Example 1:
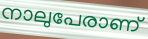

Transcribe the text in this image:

നാലുപേരാണ്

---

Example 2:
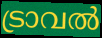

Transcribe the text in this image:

ട്രാവൽ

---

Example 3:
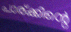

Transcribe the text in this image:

പാര്ക്കിന്റെ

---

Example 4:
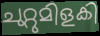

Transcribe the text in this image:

ചുറ്റുമിളകി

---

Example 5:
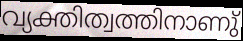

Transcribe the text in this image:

വ്യക്തിത്വത്തിനാണു്